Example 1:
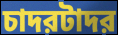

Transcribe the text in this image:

চাদরটাদর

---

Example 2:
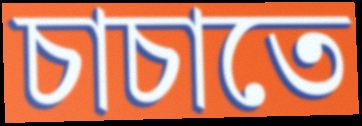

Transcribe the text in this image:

চাচাতে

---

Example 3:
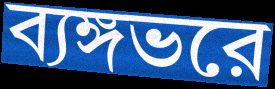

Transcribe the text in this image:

ব্যঙ্গভরে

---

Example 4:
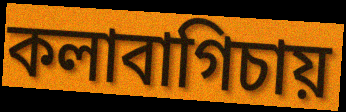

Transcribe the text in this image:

কলাবাগিচায়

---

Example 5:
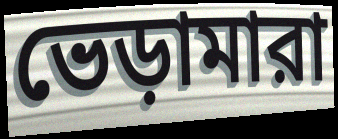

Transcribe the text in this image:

ভেড়ামারা